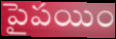
పైపయిం